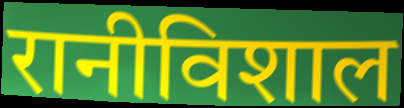
रानीविशाल